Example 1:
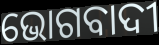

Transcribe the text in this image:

ଭୋଗବାଦୀ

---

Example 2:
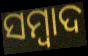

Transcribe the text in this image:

ସମ୍ବାଦ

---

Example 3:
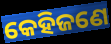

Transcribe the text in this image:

କେହିଜଣେ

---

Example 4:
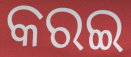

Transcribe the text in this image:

କରଇ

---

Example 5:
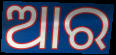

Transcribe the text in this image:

ଆର